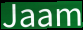
Jaam